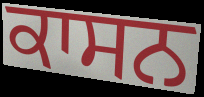
ਕਾਸਨ